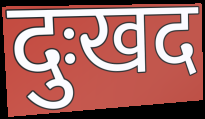
दुःखद